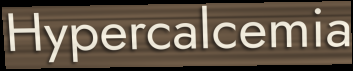
Hypercalcemia